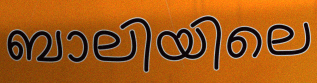
ബാലിയിലെ